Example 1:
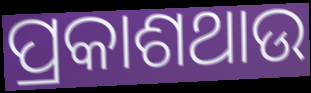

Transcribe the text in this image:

ପ୍ରକାଶଥାଉ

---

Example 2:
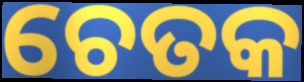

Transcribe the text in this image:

ଚେତକ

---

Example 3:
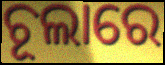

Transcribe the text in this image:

ଚୂଲାରେ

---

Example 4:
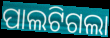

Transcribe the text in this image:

ପାଲଟିଗଲା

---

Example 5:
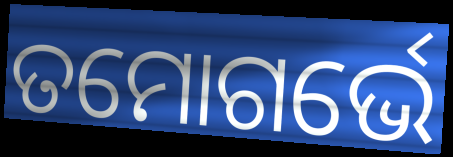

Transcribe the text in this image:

ତମୋଗର୍ଭେ